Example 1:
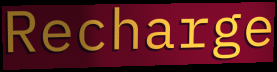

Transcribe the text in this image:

Recharge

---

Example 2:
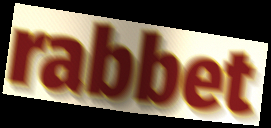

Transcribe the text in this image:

rabbet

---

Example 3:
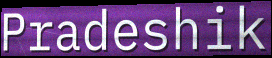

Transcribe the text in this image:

Pradeshik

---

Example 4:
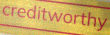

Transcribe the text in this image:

creditworthy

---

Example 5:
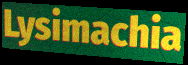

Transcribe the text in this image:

Lysimachia